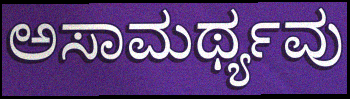
ಅಸಾಮರ್ಥ್ಯವು